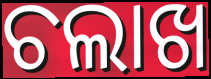
ଚଲାଖ